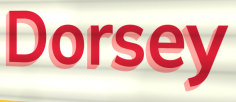
Dorsey